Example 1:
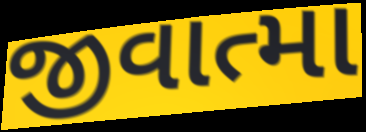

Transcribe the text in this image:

જીવાત્મા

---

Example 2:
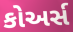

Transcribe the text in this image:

કોઅર્સ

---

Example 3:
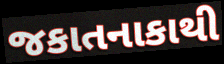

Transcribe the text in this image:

જકાતનાકાથી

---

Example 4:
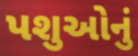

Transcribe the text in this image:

પશુઓનું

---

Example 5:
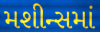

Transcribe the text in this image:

મશીન્સમાં